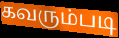
கவரும்படி